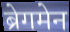
ब्रेगमेन